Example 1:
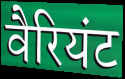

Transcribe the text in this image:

वैरियंट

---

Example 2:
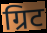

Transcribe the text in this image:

ग्रिट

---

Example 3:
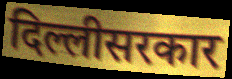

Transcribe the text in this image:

दिल्लीसरकार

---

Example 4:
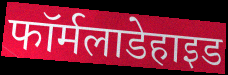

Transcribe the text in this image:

फॉर्मलाडेहाइड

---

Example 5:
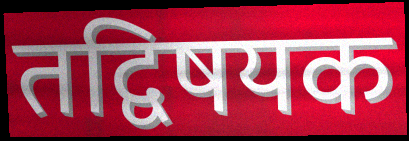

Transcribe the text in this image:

तद्विषयक